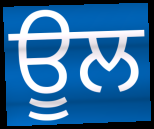
ਊਲ